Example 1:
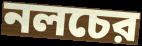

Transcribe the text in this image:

নলচের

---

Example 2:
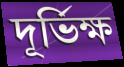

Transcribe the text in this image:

দূর্ভিক্ষ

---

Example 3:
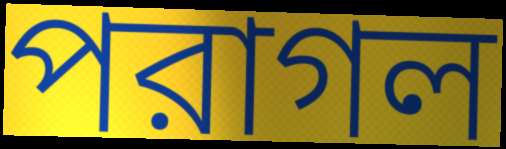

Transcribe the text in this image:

পরাগল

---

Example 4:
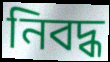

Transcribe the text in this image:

নিবদ্ধ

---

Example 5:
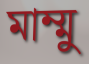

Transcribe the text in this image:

মাম্মু